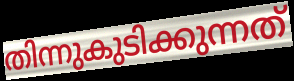
തിന്നുകുടിക്കുന്നത്